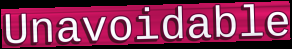
Unavoidable